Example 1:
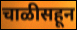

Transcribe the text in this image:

चाळीसहून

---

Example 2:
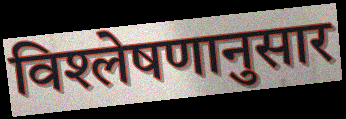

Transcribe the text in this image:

विश्लेषणानुसार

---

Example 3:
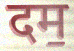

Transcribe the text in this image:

दम॒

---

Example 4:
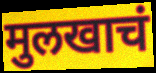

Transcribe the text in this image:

मुलखाचं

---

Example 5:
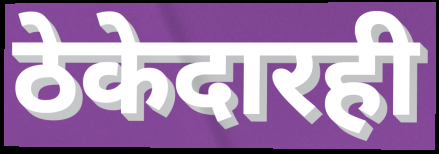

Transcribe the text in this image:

ठेकेदारही